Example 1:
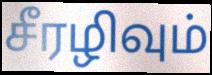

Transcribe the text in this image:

சீரழிவும்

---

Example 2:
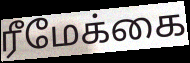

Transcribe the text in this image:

ரீமேக்கை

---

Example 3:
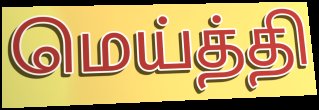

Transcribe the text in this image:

மெய்த்தி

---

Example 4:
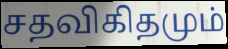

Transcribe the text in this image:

சதவிகிதமும்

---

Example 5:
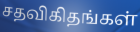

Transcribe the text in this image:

சதவிகிதங்கள்